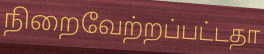
நிறைவேற்றப்பட்டதா